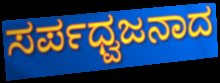
ಸರ್ಪಧ್ವಜನಾದ